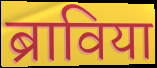
ब्राविया